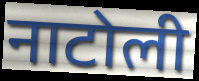
नाटोली